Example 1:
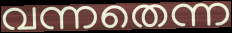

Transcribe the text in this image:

വന്നതെന്ന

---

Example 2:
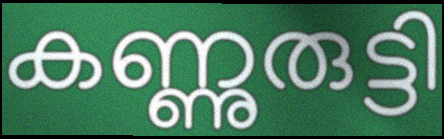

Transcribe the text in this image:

കണ്ണുരുട്ടി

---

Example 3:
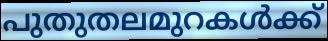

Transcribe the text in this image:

പുതുതലമുറകൾക്ക്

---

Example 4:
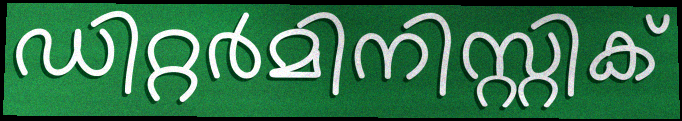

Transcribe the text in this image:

ഡിറ്റർമിനിസ്റ്റിക്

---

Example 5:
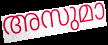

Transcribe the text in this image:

അസുമാ